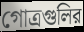
গোত্রগুলির